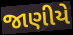
જાણીયે